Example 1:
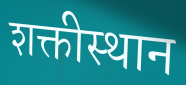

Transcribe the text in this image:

शक्तीस्थान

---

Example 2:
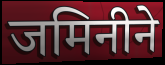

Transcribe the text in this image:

जमिनीने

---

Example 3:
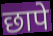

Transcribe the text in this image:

छापे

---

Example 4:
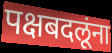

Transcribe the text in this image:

पक्षबदलूंना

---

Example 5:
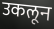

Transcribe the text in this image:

उकलून